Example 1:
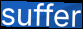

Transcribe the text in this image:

suffer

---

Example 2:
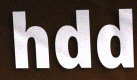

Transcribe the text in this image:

hdd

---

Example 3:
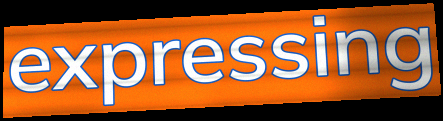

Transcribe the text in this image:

expressing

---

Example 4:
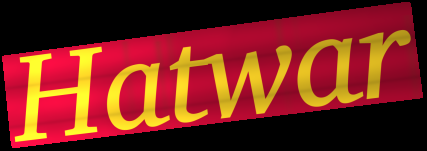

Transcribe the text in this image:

Hatwar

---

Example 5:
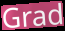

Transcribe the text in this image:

Grad